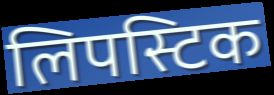
लिपस्टिक